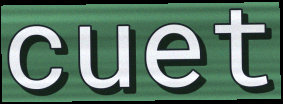
cuet